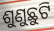
ଶୁଣୁଛୁଟି